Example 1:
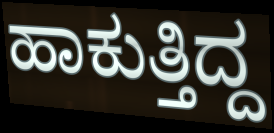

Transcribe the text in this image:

ಹಾಕುತ್ತಿದ್ದ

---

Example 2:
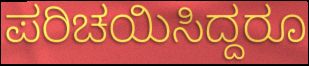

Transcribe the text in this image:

ಪರಿಚಯಿಸಿದ್ದರೂ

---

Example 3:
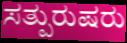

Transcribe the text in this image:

ಸತ್ಪುರುಷರು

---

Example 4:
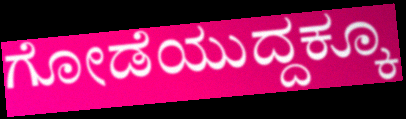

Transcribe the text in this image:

ಗೋಡೆಯುದ್ದಕ್ಕೂ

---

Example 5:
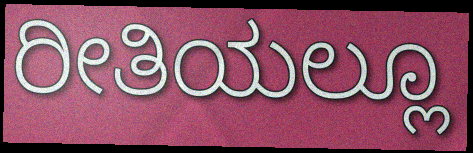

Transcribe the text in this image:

ರೀತಿಯಲ್ಲೂ